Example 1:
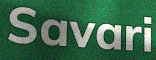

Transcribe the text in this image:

Savari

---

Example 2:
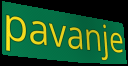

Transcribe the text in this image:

pavanje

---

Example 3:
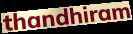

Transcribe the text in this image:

thandhiram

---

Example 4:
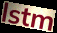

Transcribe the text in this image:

lstm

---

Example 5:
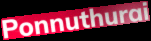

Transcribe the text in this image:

Ponnuthurai